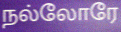
நல்லோரே